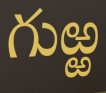
గుఱ్ఱ